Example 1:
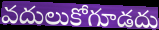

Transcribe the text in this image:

వదులుకోగూడదు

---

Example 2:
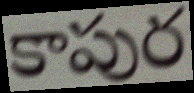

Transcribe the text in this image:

కాపుర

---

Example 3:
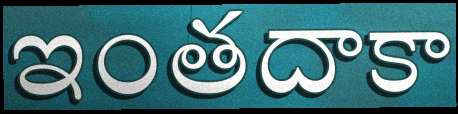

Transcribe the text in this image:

ఇంతదాకా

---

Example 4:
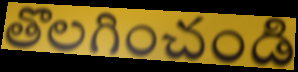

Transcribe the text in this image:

తొలగించండి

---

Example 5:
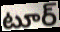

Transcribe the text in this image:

టూర్